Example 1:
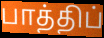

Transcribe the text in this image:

பாத்திப்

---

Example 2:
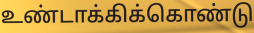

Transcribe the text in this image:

உண்டாக்கிக்கொண்டு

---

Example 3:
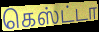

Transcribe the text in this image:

கெஸ்ட்டா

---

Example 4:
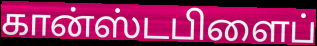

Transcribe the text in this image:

கான்ஸ்டபிளைப்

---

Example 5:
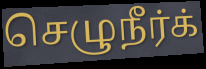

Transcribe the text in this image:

செழுநீர்க்